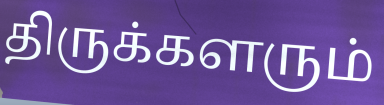
திருக்களரும்